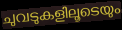
ചുവടുകളിലൂടെയും